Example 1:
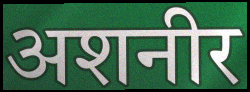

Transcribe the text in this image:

अशनीर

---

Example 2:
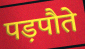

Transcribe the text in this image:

पड़पौते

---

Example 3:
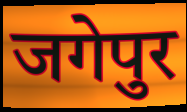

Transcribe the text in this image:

जगेपुर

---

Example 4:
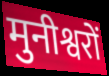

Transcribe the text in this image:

मुनीश्वरों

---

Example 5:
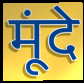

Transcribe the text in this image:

मूंदे